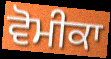
ਵੋਮੀਕਾ